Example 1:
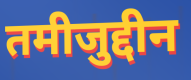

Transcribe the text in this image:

तमीजुद्दीन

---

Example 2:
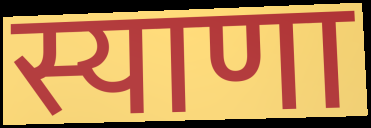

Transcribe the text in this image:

स्याणा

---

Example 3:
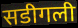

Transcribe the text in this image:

सडीगली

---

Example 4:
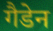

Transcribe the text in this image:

गैडेन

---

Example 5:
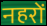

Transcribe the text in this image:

नहरों